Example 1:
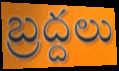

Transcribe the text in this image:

బ్రద్దలు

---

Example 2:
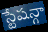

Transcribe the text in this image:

స్టేషన్గా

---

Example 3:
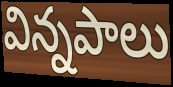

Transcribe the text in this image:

విన్నపాలు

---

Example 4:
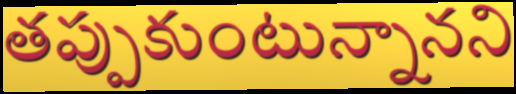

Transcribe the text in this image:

తప్పుకుంటున్నానని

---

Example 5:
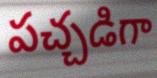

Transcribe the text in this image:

పచ్చడిగా